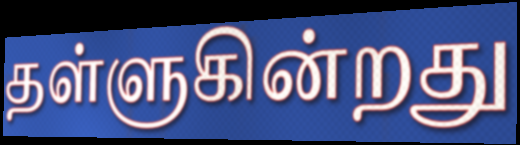
தள்ளுகின்றது